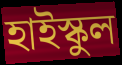
হাইস্কুল